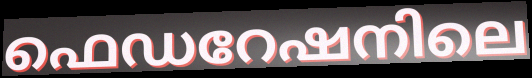
ഫെഡറേഷനിലെ